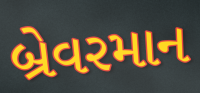
બ્રેવરમાન